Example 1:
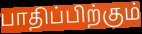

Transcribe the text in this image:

பாதிப்பிற்கும்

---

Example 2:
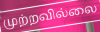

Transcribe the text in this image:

முற்றவில்லை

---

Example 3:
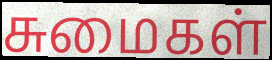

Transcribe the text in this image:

சுமைகள்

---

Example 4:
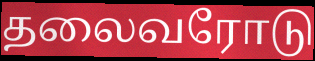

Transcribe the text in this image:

தலைவரோடு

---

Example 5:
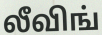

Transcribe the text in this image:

லீவிங்